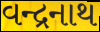
વન્દ્રનાથ